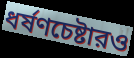
ধর্ষণচেষ্টারও